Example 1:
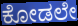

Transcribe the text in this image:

ಕೋಡಲೇ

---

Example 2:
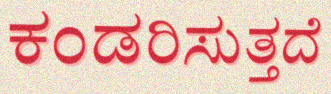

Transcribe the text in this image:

ಕಂಡರಿಸುತ್ತದೆ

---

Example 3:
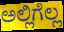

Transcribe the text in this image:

ಅಲ್ಲಿಗೆಲ್ಲ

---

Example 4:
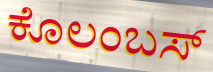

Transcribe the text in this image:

ಕೊಲಂಬಸ್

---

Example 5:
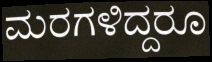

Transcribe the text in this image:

ಮರಗಳಿದ್ದರೂ